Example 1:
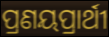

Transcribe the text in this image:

ପ୍ରଣୟପ୍ରାର୍ଥୀ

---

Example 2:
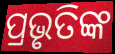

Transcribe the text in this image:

ପ୍ରଭୃତିଙ୍କ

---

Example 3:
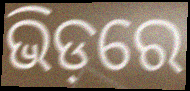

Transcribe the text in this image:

ଭିଡ଼ରେ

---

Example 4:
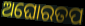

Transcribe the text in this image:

ଅଘୋରତପ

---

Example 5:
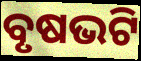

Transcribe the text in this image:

ବୃଷଭଟି